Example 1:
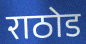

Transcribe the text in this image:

राठोड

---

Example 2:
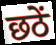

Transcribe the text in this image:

छठें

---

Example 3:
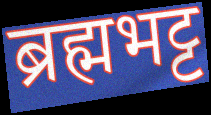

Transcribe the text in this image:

ब्रह्मभट्ट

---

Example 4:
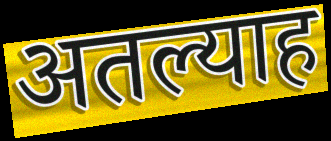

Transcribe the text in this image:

अतल्याह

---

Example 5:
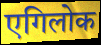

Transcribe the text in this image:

एगिलोक